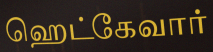
ஹெட்கேவார்